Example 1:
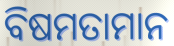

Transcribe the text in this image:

ବିଷମତାମାନ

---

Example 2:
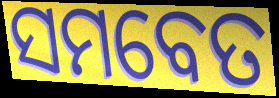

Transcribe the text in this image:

ସମବେତ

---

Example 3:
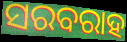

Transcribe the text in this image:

ସରବରାହ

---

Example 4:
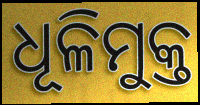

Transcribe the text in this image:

ଧୂଳିମୁକ୍ତ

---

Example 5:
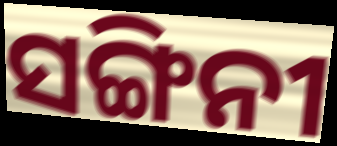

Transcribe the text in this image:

ସଙ୍ଗିନୀ